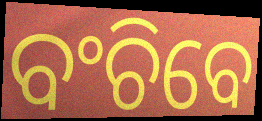
ବଂଚିବେ